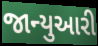
જાન્યુઆરી